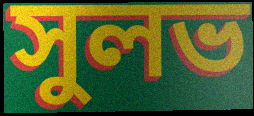
সুলভ